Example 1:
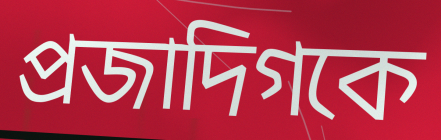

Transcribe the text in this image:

প্রজাদিগকে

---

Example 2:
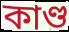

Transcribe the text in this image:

কাণ্ড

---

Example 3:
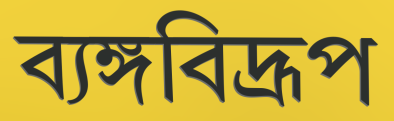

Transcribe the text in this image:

ব্যঙ্গবিদ্রূপ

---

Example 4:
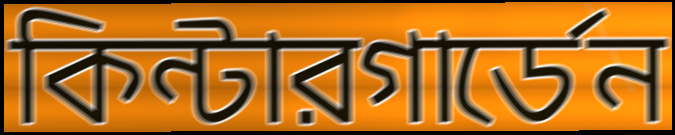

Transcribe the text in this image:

কিন্টারগার্ডেন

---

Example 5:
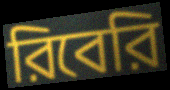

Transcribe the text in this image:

রিবেরি